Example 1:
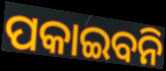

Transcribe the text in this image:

ପକାଇବନି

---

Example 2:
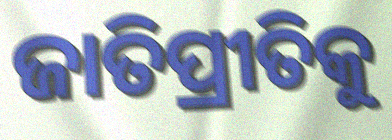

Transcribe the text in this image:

ଜାତିପ୍ରୀତିକୁ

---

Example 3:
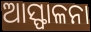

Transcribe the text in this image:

ଆସ୍ଫାଳନା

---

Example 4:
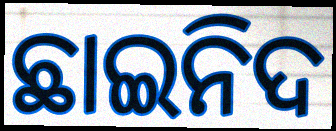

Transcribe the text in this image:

ଛାଇନିଦ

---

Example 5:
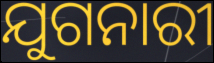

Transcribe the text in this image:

ଯୁଗନାରୀ